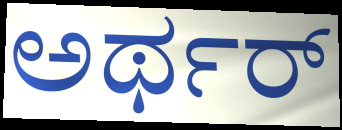
ಅರ್ಥರ್